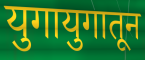
युगायुगातून